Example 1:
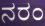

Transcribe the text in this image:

ನರಂ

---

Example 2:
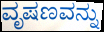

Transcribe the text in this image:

ವೃಷಣವನ್ನು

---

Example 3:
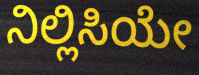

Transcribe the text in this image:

ನಿಲ್ಲಿಸಿಯೇ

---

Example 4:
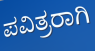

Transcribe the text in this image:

ಪವಿತ್ರರಾಗಿ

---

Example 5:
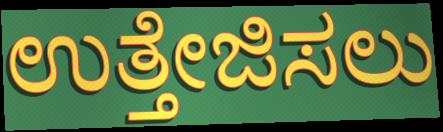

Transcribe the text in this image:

ಉತ್ತೇಜಿಸಲು